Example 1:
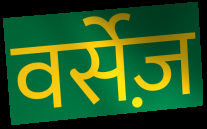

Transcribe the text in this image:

वर्सेज़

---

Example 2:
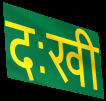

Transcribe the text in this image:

दःखी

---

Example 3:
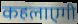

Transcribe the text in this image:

कहलाएगी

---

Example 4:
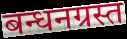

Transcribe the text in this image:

बन्धनग्रस्त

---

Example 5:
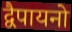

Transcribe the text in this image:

द्वैपायनो